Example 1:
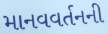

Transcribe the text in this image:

માનવવર્તનની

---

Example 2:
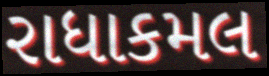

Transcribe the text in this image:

રાધાકમલ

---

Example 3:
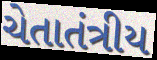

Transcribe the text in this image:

ચેતાતંત્રીય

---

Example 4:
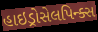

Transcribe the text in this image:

હાઇડ્રોસેલપિન્ક્સ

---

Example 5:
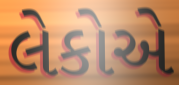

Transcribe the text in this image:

લેકોએ